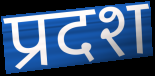
प्रदश